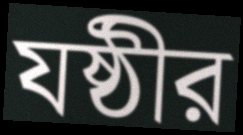
যষ্ঠীর